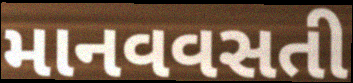
માનવવસતી